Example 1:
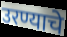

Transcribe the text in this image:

उरण्याचे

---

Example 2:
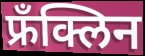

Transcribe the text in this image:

फ्रँक्लिन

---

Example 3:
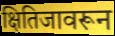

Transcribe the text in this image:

क्षितिजावरून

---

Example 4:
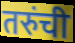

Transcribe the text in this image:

तरुंची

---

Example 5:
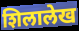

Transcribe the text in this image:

शिलालेख